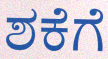
ಶಕೆಗೆ